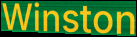
Winston